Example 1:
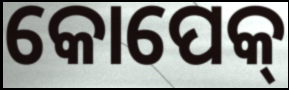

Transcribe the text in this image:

କୋପେକ୍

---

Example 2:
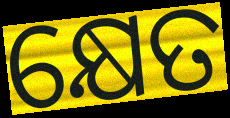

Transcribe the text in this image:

କ୍ଷେତ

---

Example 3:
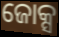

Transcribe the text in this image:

ଜୋକ୍ସ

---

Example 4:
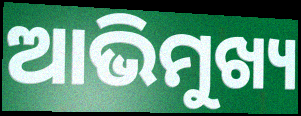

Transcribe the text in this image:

ଆଭିମୁଖ୍ୟ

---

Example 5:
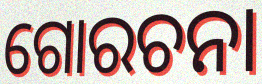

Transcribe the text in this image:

ଗୋରଚନା